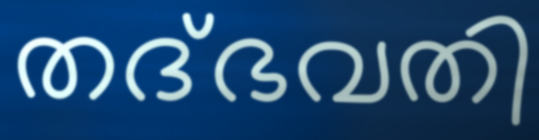
തദ്ഭവതി